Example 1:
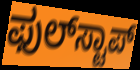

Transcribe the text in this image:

ಫುಲ್‍ಸ್ಟಾಪ್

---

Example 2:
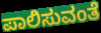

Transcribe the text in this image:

ಪಾಲಿಸುವಂತೆ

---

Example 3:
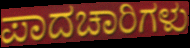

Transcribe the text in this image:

ಪಾದಚಾರಿಗಳು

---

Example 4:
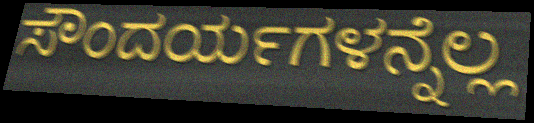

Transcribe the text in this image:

ಸೌಂದರ್ಯಗಳನ್ನೆಲ್ಲ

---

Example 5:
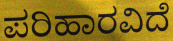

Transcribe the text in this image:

ಪರಿಹಾರವಿದೆ